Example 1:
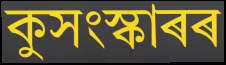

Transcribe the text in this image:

কুসংস্কাৰৰ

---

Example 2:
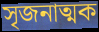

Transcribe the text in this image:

সৃজনাত্মক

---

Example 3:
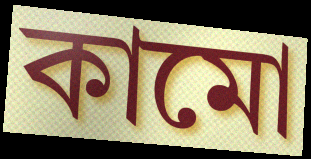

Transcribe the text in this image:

কামো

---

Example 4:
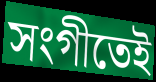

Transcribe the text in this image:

সংগীতেই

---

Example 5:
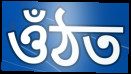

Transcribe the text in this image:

ওঁঠত